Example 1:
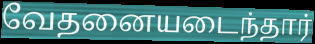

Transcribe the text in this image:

வேதனையடைந்தார்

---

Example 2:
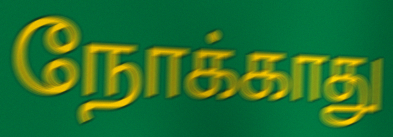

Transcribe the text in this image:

நோக்காது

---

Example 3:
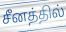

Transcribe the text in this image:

சீனத்தில்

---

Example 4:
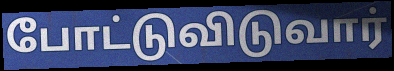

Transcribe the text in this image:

போட்டுவிடுவார்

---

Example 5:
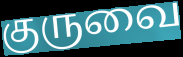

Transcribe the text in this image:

குருவை